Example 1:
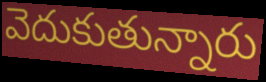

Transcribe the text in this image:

వెదుకుతున్నారు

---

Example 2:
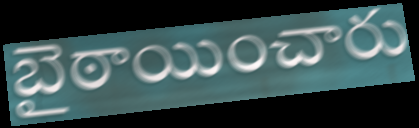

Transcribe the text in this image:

బైఠాయించారు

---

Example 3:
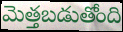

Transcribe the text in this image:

మెత్తబడుతోంది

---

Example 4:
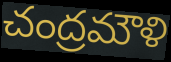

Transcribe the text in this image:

చంద్రమౌళి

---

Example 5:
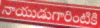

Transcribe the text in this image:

నాయుడుగారింటికి